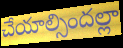
చేయాల్సిందల్లా